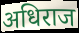
अधिराज